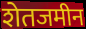
शेतजमीन